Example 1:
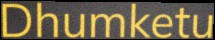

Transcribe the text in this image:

Dhumketu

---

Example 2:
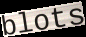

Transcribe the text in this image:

blots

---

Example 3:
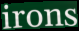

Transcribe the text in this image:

irons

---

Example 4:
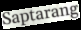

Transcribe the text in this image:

Saptarang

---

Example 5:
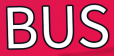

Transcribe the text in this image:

BUS